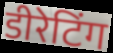
डीरेटिंग